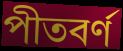
পীতবর্ণ